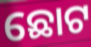
ଛୋଟ